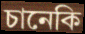
চানেকি